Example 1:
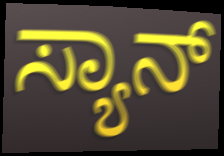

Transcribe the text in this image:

ಸ್ಯಾನ್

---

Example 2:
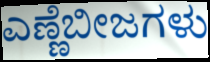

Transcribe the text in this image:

ಎಣ್ಣೆಬೀಜಗಳು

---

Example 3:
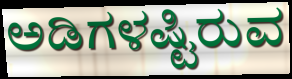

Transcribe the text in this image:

ಅಡಿಗಳಷ್ಟಿರುವ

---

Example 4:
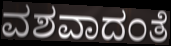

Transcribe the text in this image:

ವಶವಾದಂತೆ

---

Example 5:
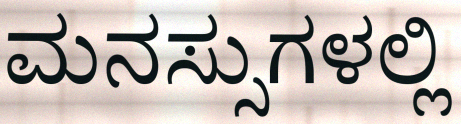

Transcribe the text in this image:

ಮನಸ್ಸುಗಳಲ್ಲಿ